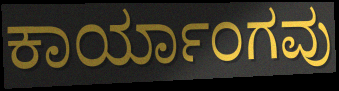
ಕಾರ್ಯಾಂಗವು